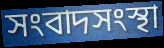
সংবাদসংস্থা